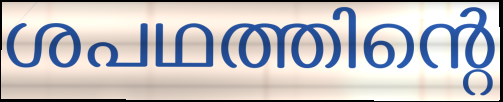
ശപഥത്തിന്റെ